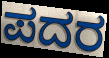
ಪದರ